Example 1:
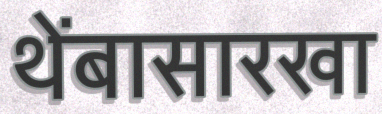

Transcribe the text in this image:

थेंबासारखा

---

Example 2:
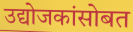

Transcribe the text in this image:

उद्योजकांसोबत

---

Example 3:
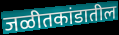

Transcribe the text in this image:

जळीतकांडातील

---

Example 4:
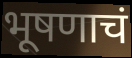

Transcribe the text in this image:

भूषणाचं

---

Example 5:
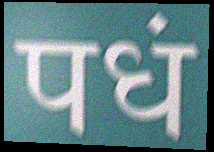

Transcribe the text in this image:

पधं